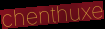
chenthuxe